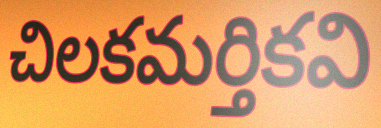
చిలకమర్తికవి